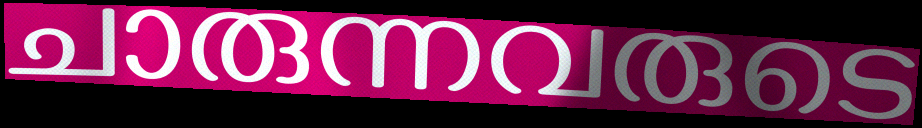
ചാരുന്നവരുടെ